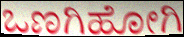
ಒಣಗಿಹೋಗಿ